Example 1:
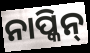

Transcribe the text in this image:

ନାପ୍କିନ୍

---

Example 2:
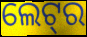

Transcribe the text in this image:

ଲେଟ୍‌ର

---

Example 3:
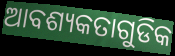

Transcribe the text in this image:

ଆବଶ୍ୟକତାଗୁଡିକ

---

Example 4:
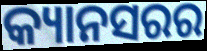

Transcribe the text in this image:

କ୍ୟାନସରର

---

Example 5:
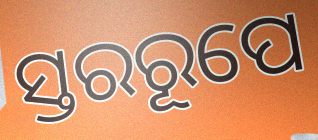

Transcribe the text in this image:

ସ୍ତରରୂପେ